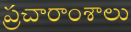
ప్రచారాంశాలు